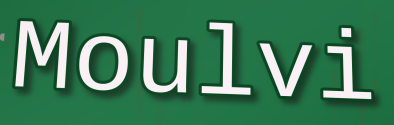
Moulvi